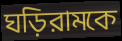
ঘড়িরামকে